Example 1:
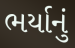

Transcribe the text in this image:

ભર્યાનું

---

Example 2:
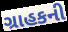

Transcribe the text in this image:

ગ્રાહકની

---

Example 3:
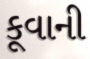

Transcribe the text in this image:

કૂવાની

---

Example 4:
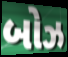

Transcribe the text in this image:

બોઝ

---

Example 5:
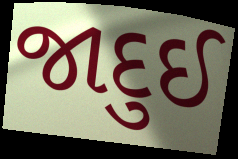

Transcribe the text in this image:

જાદુઈ